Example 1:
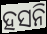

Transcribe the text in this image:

ହସନି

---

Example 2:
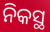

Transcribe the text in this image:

ନିକସ୍ଥ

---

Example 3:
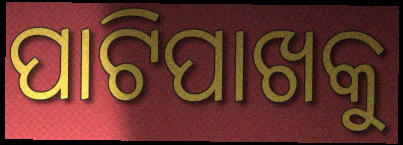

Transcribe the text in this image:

ପାଟିପାଖକୁ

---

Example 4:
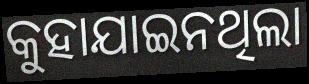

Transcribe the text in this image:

କୁହାଯାଇନଥିଲା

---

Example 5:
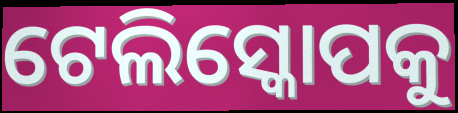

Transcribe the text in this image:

ଟେଲିସ୍କୋପକୁ